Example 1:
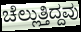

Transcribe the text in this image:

ಚೆಲ್ಲುತ್ತಿದ್ದವು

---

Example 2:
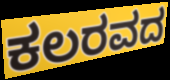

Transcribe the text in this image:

ಕಲರವದ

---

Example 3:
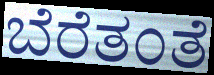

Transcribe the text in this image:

ಬೆರೆತಂತೆ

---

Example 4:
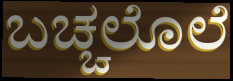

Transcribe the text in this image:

ಬಚ್ಚಲೊಲೆ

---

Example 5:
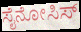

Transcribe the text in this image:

ಸೈನೋಸಿಸ್